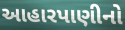
આહારપાણીનો